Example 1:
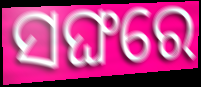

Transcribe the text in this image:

ସଙ୍ଘରେ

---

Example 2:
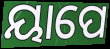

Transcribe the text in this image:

ୟାପେ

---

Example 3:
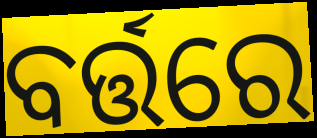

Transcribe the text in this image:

ବର୍ତ୍ତରେ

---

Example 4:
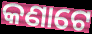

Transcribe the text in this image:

କଣାଟେ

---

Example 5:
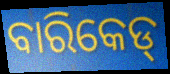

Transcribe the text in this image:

ବାରିକେଡ୍